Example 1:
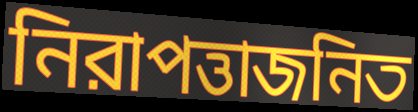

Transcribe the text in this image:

নিরাপত্তাজনিত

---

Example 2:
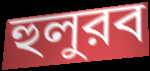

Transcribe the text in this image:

হুলুরব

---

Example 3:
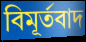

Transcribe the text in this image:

বিমূর্তবাদ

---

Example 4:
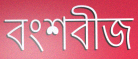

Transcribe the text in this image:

বংশবীজ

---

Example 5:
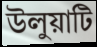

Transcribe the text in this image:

উলুয়াটি